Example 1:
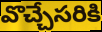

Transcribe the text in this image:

వొచ్చేసరికి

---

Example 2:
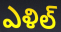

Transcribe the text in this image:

ఎళిల్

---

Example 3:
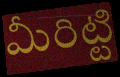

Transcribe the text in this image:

మీరిట్టి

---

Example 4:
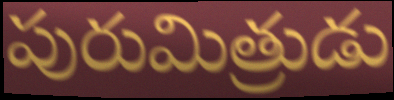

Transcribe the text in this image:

పురుమిత్రుడు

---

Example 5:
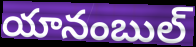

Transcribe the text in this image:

యానంబుల్